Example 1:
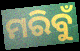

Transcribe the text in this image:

ମରିବୁଁ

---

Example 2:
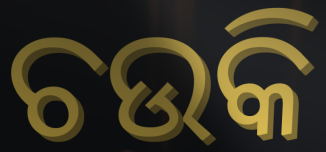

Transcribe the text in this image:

ଚଉକି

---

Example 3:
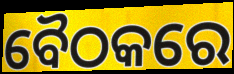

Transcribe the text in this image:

ବୈଠକରେ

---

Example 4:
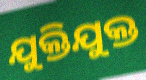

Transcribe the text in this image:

ଯୁକ୍ତିଯୁକ୍ତ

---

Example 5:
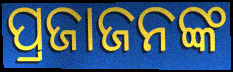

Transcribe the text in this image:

ପ୍ରଜାଜନଙ୍କ